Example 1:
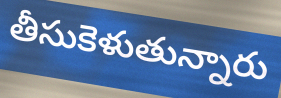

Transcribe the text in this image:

తీసుకెళుతున్నారు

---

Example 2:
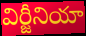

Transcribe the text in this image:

విర్జీనియా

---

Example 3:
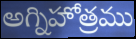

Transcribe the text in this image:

అగ్నిహోత్రము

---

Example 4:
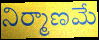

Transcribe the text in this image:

నిర్మాణమే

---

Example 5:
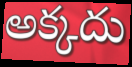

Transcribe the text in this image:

అక్కదు